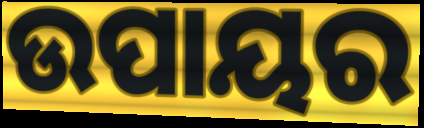
ଉପାୟର